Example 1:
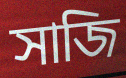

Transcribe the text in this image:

সাজি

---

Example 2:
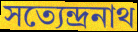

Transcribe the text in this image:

সত্যেন্দ্ৰনাথ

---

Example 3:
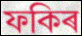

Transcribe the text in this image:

ফকিৰ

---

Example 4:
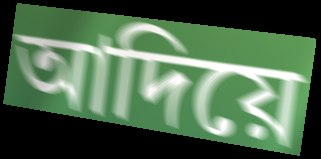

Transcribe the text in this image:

আদিয়ে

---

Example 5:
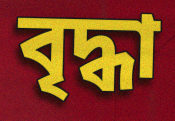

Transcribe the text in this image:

বৃদ্ধা